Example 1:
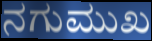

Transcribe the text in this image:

ನಗುಮುಖ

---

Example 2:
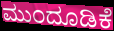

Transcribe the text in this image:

ಮುಂದೂಡಿಕೆ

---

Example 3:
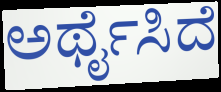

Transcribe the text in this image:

ಅರ್ಥೈಸಿದೆ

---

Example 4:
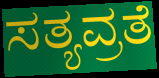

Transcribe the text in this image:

ಸತ್ಯವ್ರತೆ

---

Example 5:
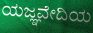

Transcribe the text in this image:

ಯಜ್ಞವೇದಿಯ